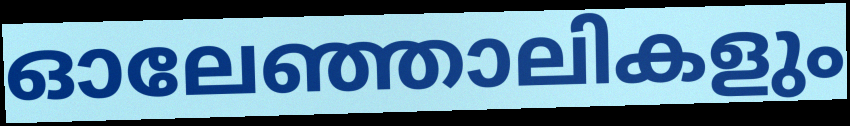
ഓലേഞ്ഞാലികളും